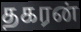
தகரன்